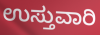
ಉಸ್ತುವಾರಿ